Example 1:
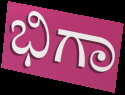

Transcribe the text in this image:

ಭಿಗಾ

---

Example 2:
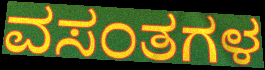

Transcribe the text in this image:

ವಸಂತಗಳ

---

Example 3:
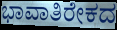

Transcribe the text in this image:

ಭಾವಾತಿರೇಕದ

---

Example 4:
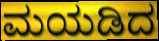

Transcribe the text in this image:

ಮಯಡಿದ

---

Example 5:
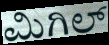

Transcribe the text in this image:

ಮಿಗಿಲ್